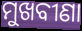
ମୁଖବୀଣା